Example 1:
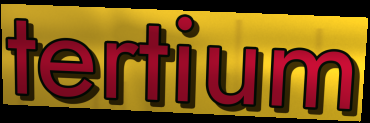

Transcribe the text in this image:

tertium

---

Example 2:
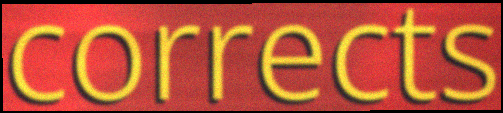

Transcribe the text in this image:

corrects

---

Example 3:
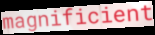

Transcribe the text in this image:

magnificient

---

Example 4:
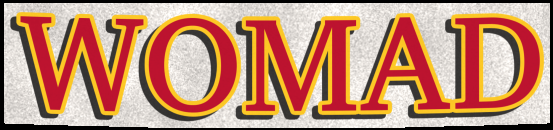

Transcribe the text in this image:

WOMAD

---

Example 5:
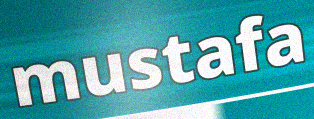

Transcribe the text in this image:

mustafa